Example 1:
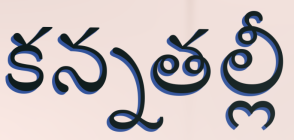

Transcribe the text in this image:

కన్నతల్లీ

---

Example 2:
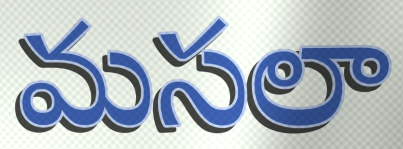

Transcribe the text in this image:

మసలా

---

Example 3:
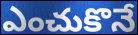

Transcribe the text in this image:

ఎంచుకొనే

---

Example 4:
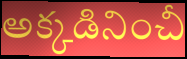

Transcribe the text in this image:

అక్కడినించీ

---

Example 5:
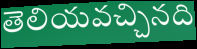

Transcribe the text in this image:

తెలియవచ్చినది